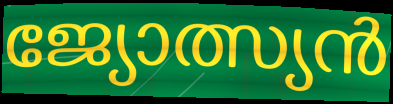
ജ്യോത്സ്യൻ